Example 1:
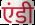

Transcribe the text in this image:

एंडी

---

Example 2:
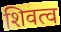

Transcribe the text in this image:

शिवत्व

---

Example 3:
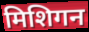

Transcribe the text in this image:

मिशिगन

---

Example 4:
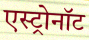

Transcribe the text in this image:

एस्‍ट्रोनॉट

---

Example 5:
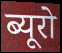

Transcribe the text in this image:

ब्यूरो